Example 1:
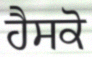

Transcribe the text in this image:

ਹੈਸਕੋ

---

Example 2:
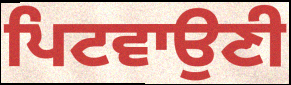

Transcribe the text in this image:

ਪਿਟਵਾਉਣੀ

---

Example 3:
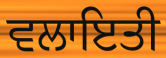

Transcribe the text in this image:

ਵਲਾਇਤੀ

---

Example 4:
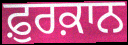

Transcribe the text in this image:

ਫ਼ੁਰਕ਼ਾਨ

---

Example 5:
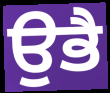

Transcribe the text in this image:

ਉਭੈ